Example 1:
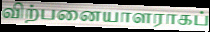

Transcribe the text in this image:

விற்பனையாளராகப்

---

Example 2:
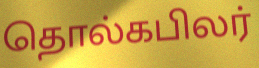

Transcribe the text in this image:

தொல்கபிலர்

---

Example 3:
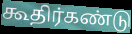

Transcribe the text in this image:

கூதிர்கண்டு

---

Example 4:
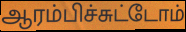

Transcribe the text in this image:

ஆரம்பிச்சுட்டோம்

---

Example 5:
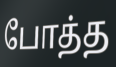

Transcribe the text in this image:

போத்த